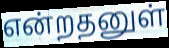
என்றதனுள்